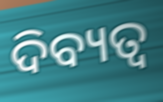
ଦିବ୍ୟତ୍ବ